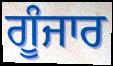
ਗੂੰਜਾਰ